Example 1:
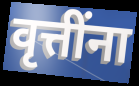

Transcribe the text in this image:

वृत्तींना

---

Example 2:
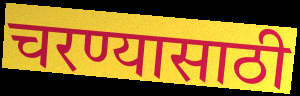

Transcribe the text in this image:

चरण्यासाठी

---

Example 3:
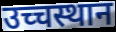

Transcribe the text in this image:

उच्चस्थान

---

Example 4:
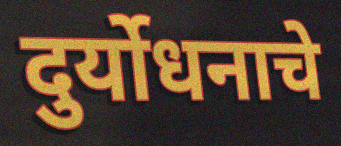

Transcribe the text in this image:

दुर्योधनाचे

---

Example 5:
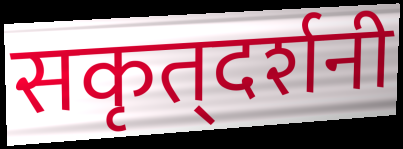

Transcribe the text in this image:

सकृत्‌दर्शनी